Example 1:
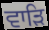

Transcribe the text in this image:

ਵਾੜਿ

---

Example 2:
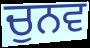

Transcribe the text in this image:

ਚੁਨਵ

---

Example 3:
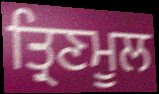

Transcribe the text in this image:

ਤ੍ਰਿਣਮੂਲ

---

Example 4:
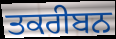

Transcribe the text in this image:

ਤਕਰੀਬਨ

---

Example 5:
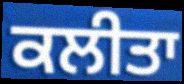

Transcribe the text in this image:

ਕਲੀਤਾ